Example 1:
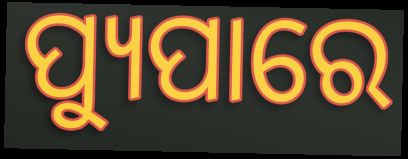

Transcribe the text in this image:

ପ୍ୟୁପାରେ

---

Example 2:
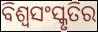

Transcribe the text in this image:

ବିଶ୍ୱସଂସ୍କୃତିର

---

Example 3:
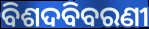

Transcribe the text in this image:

ବିଶଦବିବରଣୀ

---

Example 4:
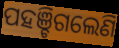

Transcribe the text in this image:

ପହଞ୍ଚିଗଲେଣି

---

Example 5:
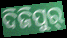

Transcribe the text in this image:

ଦିଜିପୁର୍